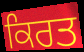
ਕਿਰਤ